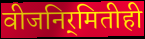
वीजनिर्मितीही